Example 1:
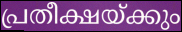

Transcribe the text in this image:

പ്രതീക്ഷയ്ക്കും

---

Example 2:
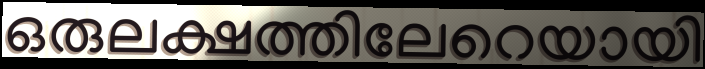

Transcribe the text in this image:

ഒരുലക്ഷത്തിലേറെയായി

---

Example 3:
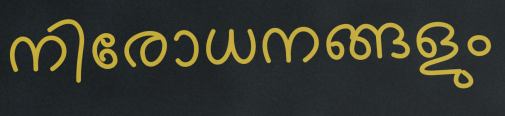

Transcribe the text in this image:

നിരോധനങ്ങളും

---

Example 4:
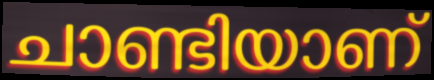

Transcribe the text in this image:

ചാണ്ടിയാണ്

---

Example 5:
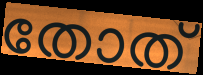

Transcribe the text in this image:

തോത്